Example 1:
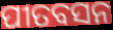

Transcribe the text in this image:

ପୀତବସନ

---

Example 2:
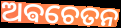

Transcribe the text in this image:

ଅଵଚେତନ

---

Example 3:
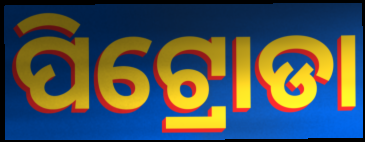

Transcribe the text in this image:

ପିଟ୍ରୋଡା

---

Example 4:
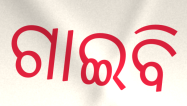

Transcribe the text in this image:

ଗାଇବି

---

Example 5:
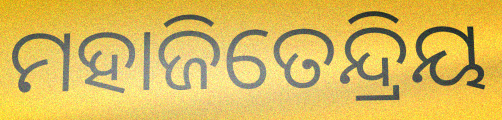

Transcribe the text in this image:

ମହାଜିତେନ୍ଦ୍ରିୟ